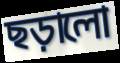
ছড়ালো